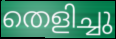
തെളിച്ചു